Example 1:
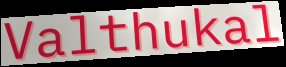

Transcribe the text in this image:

Valthukal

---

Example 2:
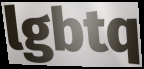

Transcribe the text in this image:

lgbtq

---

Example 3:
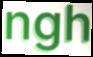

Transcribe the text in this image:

ngh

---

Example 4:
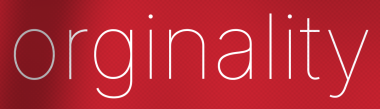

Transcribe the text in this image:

orginality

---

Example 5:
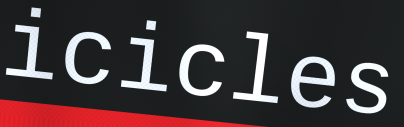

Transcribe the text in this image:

icicles